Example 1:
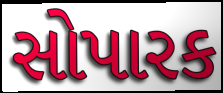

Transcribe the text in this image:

સોપારક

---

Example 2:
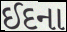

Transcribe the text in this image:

ઈદના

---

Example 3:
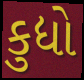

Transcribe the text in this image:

કુદ્યો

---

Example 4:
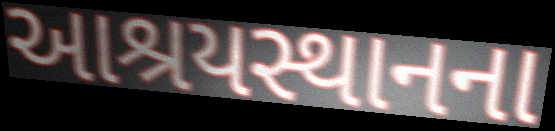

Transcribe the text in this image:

આશ્રયસ્થાનના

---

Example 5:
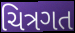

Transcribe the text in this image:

ચિત્રગત